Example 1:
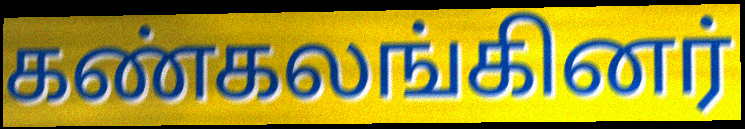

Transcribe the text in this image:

கண்கலங்கினர்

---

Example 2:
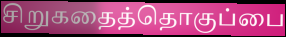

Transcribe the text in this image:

சிறுகதைத்தொகுப்பை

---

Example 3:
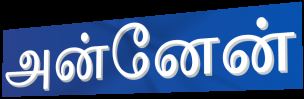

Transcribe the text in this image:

அன்னேன்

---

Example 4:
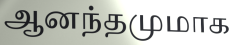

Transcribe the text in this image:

ஆனந்தமுமாக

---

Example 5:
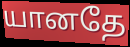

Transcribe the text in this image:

யானதே